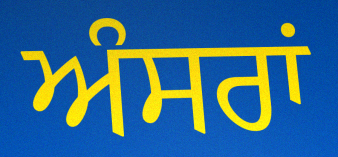
ਅੰਸਰਾਂ